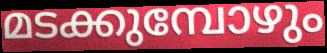
മടക്കുമ്പോഴും